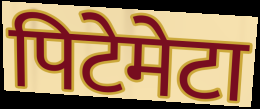
पिटेमेटा